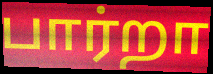
பார்றா